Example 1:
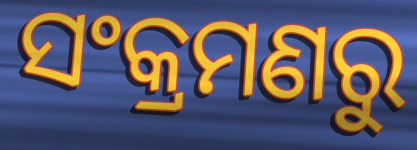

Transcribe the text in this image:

ସଂକ୍ରମଣରୁ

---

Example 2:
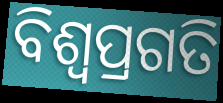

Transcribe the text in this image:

ବିଶ୍ବପ୍ରଗତି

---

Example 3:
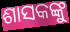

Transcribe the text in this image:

ଶାସକଙ୍କୁ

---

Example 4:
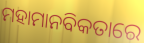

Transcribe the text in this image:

ମହାମାନବିକତାରେ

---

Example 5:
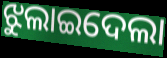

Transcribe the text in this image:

ଝୁଲାଇଦେଲା